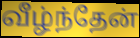
வீழ்ந்தேன்